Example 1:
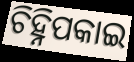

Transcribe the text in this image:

ଚିହ୍ନିପକାଇ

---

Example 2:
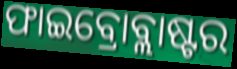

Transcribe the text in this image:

ଫାଇବ୍ରୋବ୍ଲାଷ୍ଟର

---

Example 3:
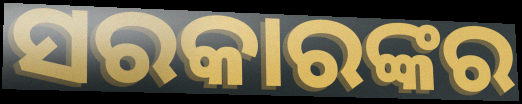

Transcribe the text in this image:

ସରକାରଙ୍କର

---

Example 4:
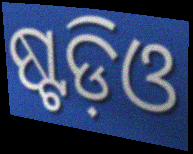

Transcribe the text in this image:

ଷ୍ଟଡ଼ିଓ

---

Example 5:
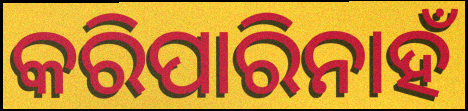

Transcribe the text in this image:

କରିପାରିନାହଁ